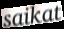
saikat